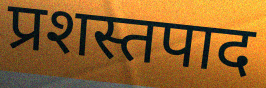
प्रशस्तपाद